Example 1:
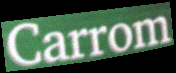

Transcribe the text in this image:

Carrom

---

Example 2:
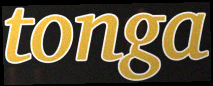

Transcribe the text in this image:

tonga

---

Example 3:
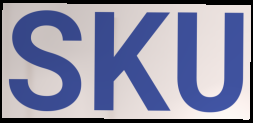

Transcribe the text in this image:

SKU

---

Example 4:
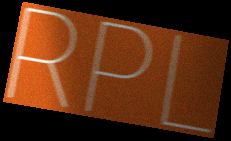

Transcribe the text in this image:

RPL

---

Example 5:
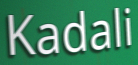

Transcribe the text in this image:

Kadali